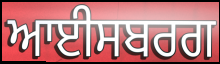
ਆਈਸਬਰਗ